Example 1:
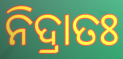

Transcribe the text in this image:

ନିଦ୍ରାତଃ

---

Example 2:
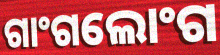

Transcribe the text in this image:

ଗାଂଗଲୋଂଗ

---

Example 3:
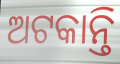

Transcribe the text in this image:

ଅଟକାନ୍ତି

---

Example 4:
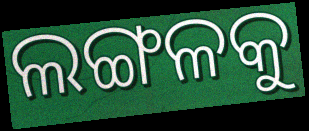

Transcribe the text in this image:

ଲଙ୍ଗଳକୁ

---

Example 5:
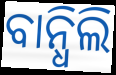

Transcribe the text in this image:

ବାନ୍ଧିଲି